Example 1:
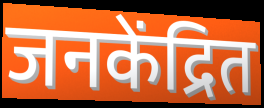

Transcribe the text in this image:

जनकेंद्रित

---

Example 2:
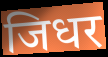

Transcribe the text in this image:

जिधर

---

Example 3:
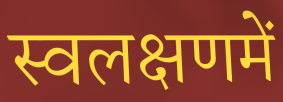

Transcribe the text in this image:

स्वलक्षणमें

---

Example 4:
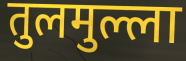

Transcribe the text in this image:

तुलमुल्ला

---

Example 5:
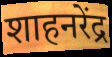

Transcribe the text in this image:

शाहनरेंद्र